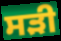
ਸੜੀ